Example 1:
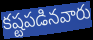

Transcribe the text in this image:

కష్టపడినవారు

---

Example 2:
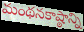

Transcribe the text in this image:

మంథనకాష్ఠాన్ని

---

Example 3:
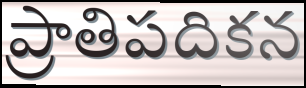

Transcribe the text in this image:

ప్రాతిపదికన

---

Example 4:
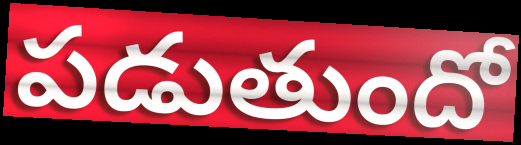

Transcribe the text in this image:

పడుతుందో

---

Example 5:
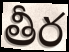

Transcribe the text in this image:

తీర